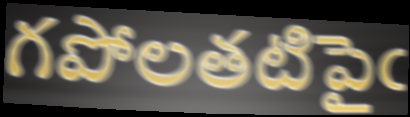
గపోలతటిపైఁ